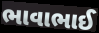
ભાવાભાઈ